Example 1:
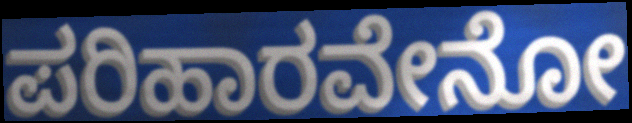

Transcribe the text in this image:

ಪರಿಹಾರವೇನೋ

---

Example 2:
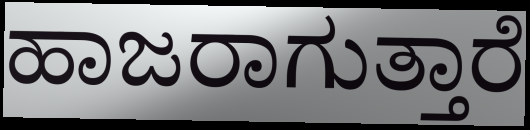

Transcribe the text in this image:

ಹಾಜರಾಗುತ್ತಾರೆ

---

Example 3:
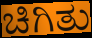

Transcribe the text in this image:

ಚಿಗಿತು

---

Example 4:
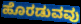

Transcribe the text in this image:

ಹೊರಡುವವು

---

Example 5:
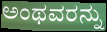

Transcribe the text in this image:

ಅಂಥವರನ್ನು